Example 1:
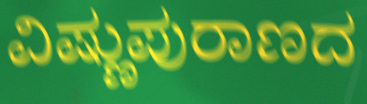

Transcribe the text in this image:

ವಿಷ್ಣುಪುರಾಣದ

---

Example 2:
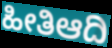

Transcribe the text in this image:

ಹೀತಿಆದಿ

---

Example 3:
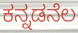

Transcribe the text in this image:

ಕನ್ನಡನೆಲ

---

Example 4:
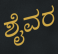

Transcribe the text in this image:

ಶೈವರ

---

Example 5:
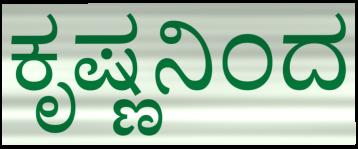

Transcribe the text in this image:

ಕೃಷ್ಣನಿಂದ